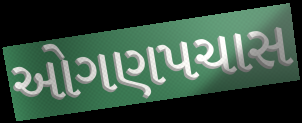
ઓગણપચાસ